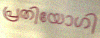
പ്രതിയോഗി